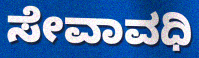
ಸೇವಾವಧಿ